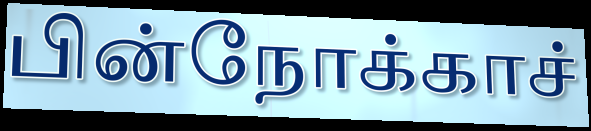
பின்நோக்காச்